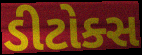
ડીટોક્સ